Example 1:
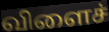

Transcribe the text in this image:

விளைச்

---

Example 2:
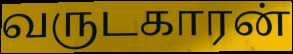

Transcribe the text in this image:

வருடகாரன்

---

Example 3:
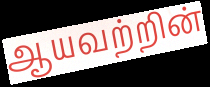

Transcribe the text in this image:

ஆயவற்றின்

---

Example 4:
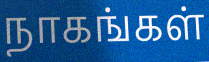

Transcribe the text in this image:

நாகங்கள்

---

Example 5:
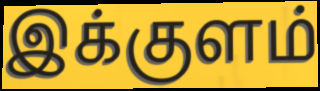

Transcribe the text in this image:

இக்குளம்